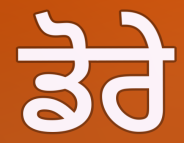
ਡੋਰੇ